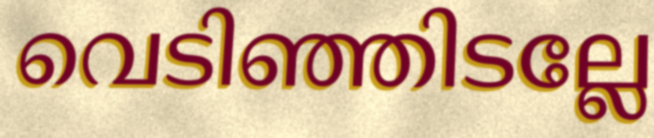
വെടിഞ്ഞിടല്ലേ